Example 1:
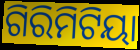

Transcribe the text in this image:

ଗିରିମିଟିୟା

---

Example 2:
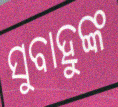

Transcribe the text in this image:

ସୁବାହୁଙ୍କ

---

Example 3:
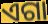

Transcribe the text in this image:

ଏଗା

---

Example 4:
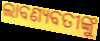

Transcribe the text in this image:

ଲାବଣ୍ୟବତୀଙ୍କୁ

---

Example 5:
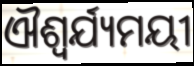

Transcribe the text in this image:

ଐଶ୍ୱର୍ଯ୍ୟମୟୀ